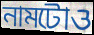
নামটোও